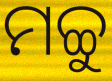
ମଚ୍ଚୁ